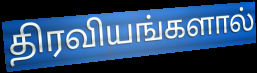
திரவியங்களால்